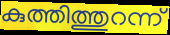
കുത്തിത്തുറന്ന്